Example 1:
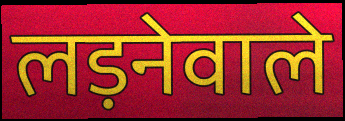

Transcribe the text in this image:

लड़नेवाले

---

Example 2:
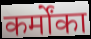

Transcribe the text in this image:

कर्मोंका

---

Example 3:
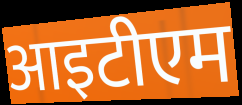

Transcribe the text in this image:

आइटीएम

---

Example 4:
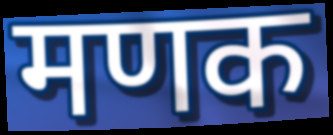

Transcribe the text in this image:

मणक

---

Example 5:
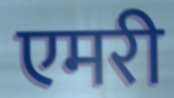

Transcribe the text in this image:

एमरी